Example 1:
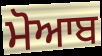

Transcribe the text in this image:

ਮੋਆਬ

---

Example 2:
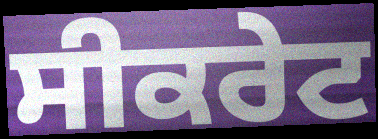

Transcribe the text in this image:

ਸੀਕਰੇਟ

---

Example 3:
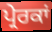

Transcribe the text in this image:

ਪ੍ਰੇਰਕਾਂ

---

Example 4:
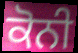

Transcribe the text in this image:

ਕੋਨੀ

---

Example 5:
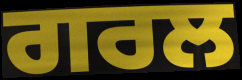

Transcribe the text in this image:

ਗਰਲ